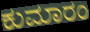
ಕುಮಾರಂ